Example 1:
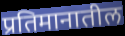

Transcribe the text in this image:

प्रतिमानातील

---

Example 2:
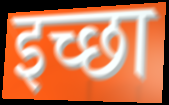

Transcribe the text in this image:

इच्छा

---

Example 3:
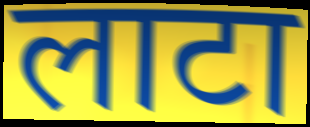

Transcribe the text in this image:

लाटा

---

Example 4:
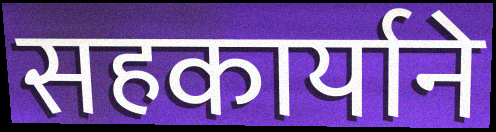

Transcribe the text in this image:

सहकार्याने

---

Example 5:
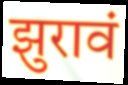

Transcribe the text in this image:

झुरावं